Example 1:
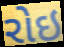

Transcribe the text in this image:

રોઇ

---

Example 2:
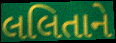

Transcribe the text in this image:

લલિતાને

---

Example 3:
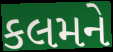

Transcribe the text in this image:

કલમને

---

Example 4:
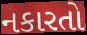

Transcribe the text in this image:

નકારતો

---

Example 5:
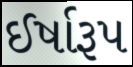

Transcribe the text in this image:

ઈર્ષારૂપ